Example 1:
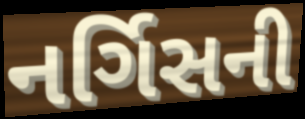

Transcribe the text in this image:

નર્ગિસની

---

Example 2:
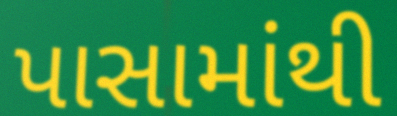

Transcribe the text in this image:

પાસામાંથી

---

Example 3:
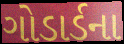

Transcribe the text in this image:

ગોડાર્ડના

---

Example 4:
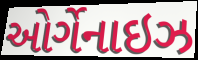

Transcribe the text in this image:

ઓર્ગેનાઇઝ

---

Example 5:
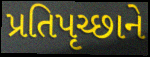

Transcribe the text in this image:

પ્રતિપૃચ્છાને